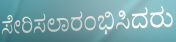
ಸೇರಿಸಲಾರಂಭಿಸಿದರು